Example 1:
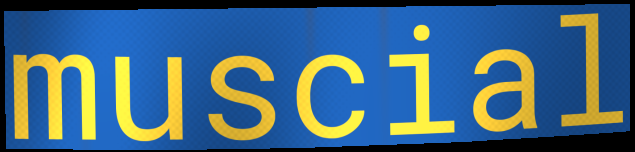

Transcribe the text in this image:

muscial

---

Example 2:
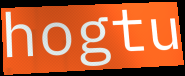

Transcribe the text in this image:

hogtu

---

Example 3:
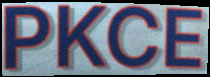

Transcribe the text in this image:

PKCE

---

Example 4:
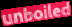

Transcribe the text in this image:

unboiled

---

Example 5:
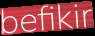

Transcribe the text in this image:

befikir